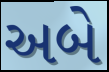
અબે